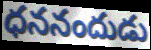
ధననందుడు